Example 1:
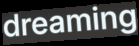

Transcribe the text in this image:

dreaming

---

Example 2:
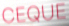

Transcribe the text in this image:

CEQUE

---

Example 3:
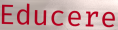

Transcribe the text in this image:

Educere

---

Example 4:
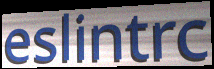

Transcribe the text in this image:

eslintrc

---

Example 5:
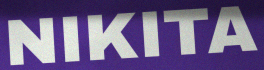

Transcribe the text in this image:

NIKITA